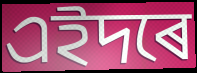
এইদৰে